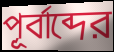
পূর্বাব্দের